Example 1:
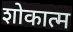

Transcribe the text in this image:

शोकात्म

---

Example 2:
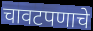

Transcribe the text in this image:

चावटपणाचे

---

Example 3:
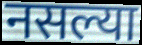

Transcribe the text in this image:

नसल्या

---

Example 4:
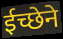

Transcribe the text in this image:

ईच्छेने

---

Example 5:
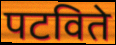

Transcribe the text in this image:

पटविते